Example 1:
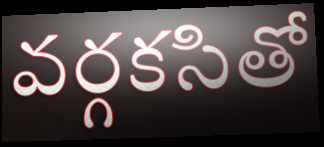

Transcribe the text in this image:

వర్గకసితో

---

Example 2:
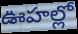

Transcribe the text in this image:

ఊహల్లో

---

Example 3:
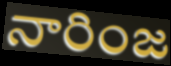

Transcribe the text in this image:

నారింజ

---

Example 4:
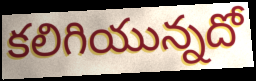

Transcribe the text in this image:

కలిగియున్నదో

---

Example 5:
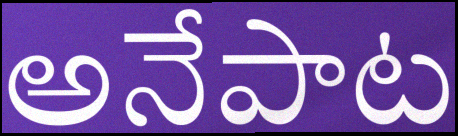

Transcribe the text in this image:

అనేపాట